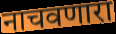
नाचवणारा